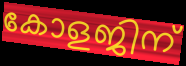
കോളജിന്